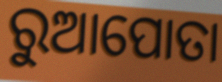
ରୁଆପୋତା